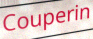
Couperin